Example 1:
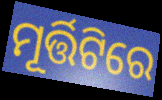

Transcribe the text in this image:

ମୂର୍ତ୍ତିଟିରେ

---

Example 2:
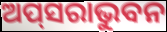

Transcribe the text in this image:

ଅପ୍‍ସରାଭୁବନ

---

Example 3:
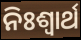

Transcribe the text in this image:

ନିଃଶ୍ୱାର୍ଥ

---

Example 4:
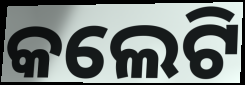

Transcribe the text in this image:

କଲେଟି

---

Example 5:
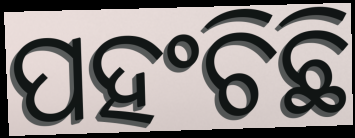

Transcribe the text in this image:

ପହଂଚିଛି